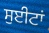
ਸੁਈਟਾਂ